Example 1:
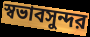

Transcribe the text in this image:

স্বভাবসুন্দর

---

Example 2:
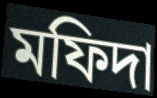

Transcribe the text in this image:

মফিদা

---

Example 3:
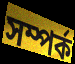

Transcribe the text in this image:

সম্পর্ক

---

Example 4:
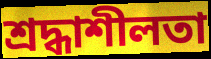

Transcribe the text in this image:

শ্রদ্ধাশীলতা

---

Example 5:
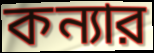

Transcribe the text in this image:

কন্যার